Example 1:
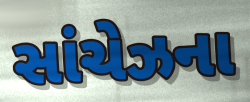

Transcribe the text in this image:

સાંચેઝના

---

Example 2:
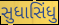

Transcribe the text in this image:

સુધાસિંધુ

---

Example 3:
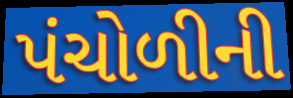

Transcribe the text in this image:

પંચોળીની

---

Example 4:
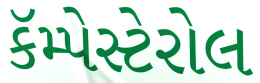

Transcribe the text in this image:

કૅમ્પેસ્ટેરોલ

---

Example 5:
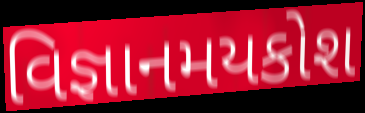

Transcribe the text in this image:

વિજ્ઞાનમયકોશ